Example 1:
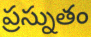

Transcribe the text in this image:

ప్రస్నుతం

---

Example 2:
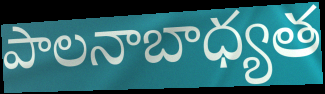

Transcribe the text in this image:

పాలనాబాధ్యత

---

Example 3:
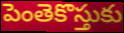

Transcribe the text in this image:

పెంతెకొస్తుకు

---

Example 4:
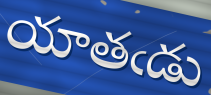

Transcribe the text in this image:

యాతఁడు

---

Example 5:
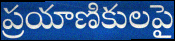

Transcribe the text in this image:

ప్రయాణికులపై